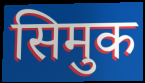
सिमुक